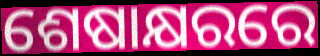
ଶେଷାକ୍ଷରରେ